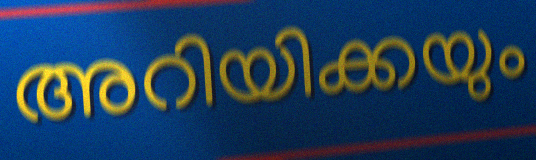
അറിയിക്കയും